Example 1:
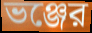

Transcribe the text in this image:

ভঞ্জের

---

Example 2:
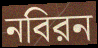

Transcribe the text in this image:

নবিরন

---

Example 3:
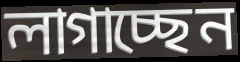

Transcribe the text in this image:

লাগাচ্ছেন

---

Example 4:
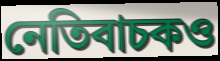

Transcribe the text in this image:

নেতিবাচকও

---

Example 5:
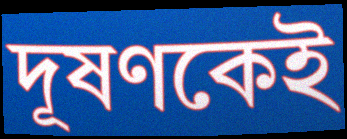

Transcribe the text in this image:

দূষণকেই